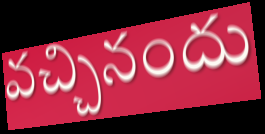
వచ్చినందు